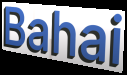
Bahai